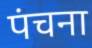
पंचना